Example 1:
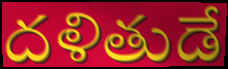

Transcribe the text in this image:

దళితుడే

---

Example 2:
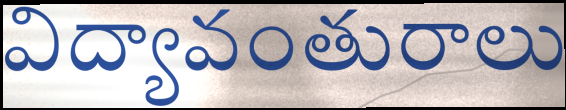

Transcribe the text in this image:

విద్యావంతురాలు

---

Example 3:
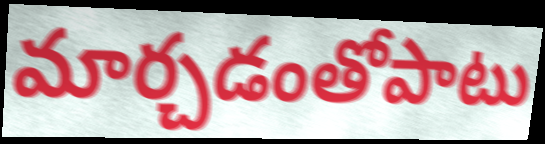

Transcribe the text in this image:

మార్చడంతోపాటు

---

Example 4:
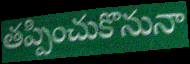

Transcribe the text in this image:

తప్పించుకొనునా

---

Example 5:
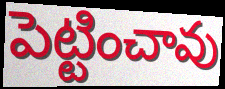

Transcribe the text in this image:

పెట్టించావు